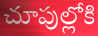
చూపుల్లోకి